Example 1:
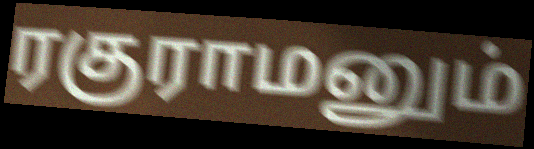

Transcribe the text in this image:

ரகுராமனும்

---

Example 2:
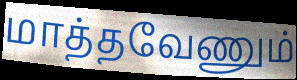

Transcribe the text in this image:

மாத்தவேணும்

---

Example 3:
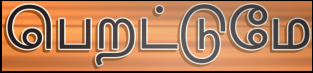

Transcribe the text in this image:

பெறட்டுமே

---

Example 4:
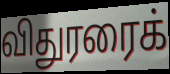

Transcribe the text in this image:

விதுரரைக்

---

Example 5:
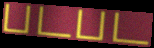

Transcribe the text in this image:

படபட